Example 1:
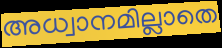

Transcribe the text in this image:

അധ്വാനമില്ലാതെ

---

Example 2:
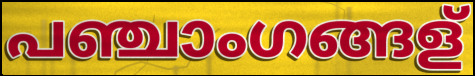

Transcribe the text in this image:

പഞ്ചാംഗങ്ങള്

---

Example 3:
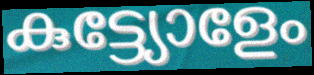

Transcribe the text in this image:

കുട്ട്യോളേം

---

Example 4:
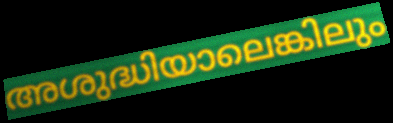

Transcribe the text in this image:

അശുദ്ധിയാലെങ്കിലും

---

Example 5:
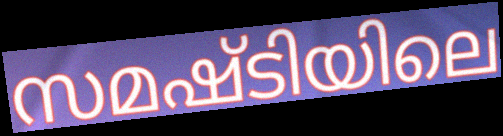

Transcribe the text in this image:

സമഷ്ടിയിലെ